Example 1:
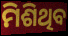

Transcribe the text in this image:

ମିଶିଥିବ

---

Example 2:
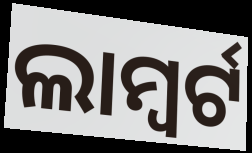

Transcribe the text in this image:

ଲାମ୍ବର୍ଟ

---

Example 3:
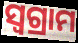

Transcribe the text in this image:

ସ୍ୱଗ୍ରାମ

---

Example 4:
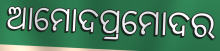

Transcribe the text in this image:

ଆମୋଦପ୍ରମୋଦର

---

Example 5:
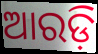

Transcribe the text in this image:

ଆରଡ଼ି